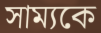
সাম্যকে